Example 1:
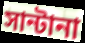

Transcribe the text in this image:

সান্টানা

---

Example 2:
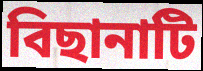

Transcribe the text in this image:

বিছানাটি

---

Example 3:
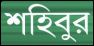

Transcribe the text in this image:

শহিবুর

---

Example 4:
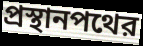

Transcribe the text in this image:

প্রস্থানপথের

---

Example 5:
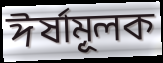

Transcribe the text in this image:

ঈর্ষামূলক